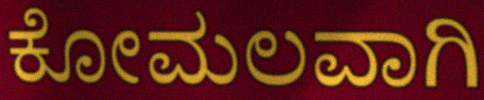
ಕೋಮಲವಾಗಿ